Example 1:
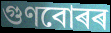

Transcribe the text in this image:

গুণবোৰৰ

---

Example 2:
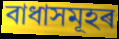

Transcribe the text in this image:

বাধাসমূহৰ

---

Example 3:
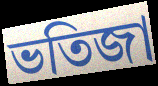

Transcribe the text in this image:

ভতিজা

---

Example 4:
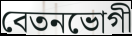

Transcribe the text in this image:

বেতনভোগী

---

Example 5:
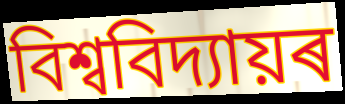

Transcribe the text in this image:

বিশ্ববিদ্যায়ৰ